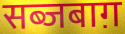
सब्जबाग़